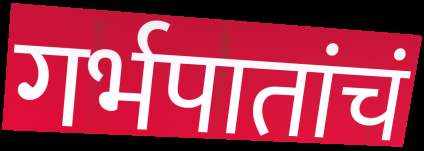
गर्भपातांचं